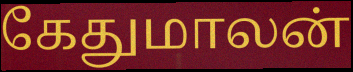
கேதுமாலன்